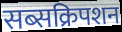
सब्सक्रिपशन